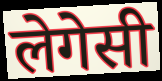
लेगेसी